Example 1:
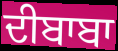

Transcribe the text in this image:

ਦੀਬਾਬਾ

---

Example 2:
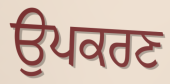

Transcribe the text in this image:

ਉਪਕਰਣ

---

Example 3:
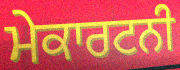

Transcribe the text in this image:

ਮੇਕਾਰਟਨੀ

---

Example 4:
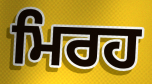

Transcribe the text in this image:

ਮਿਰਹ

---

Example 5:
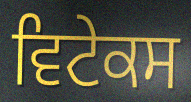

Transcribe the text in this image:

ਵਿਟੇਕਸ